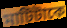
মাটিটাকে